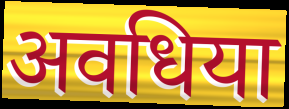
अवधिया